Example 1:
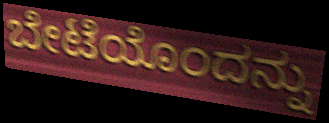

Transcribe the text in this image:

ಬೇಟೆಯೊಂದನ್ನು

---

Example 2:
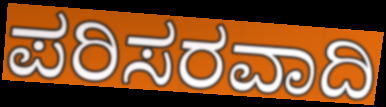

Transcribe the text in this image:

ಪರಿಸರವಾದಿ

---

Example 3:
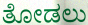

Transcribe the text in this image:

ತೋಡಲು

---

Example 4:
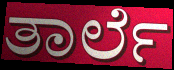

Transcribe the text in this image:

ತಾರ್ಲೆ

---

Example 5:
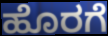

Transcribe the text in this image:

ಹೊರಗೆ